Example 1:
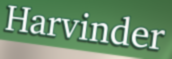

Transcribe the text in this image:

Harvinder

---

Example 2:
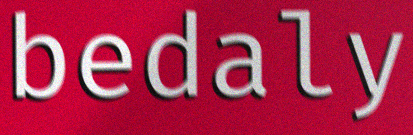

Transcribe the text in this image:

bedaly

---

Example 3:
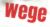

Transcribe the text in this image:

wege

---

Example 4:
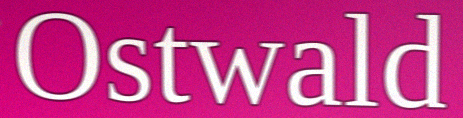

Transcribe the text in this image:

Ostwald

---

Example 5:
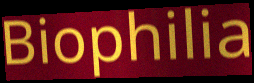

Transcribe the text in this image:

Biophilia